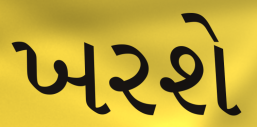
ખરશે